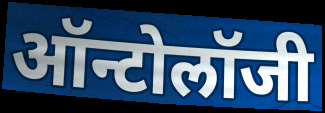
ऑन्टोलॉजी